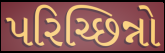
પરિચ્છિન્નો